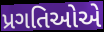
પ્રગતિઓએ